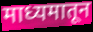
माध्यमातून